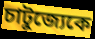
চাটুজ্যেকে